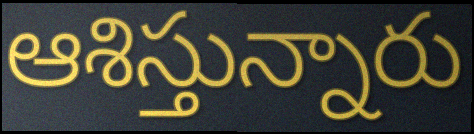
ఆశిస్తున్నారు